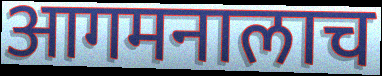
आगमनालाच